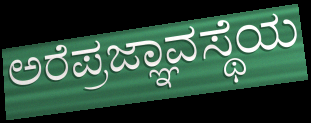
ಅರೆಪ್ರಜ್ಞಾವಸ್ಥೆಯ